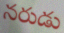
నరుడు